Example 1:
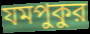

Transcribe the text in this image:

যমপুকুর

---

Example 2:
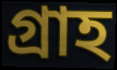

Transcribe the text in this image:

গ্রাহ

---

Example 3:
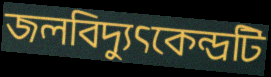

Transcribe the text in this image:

জলবিদ্যুৎকেন্দ্রটি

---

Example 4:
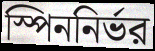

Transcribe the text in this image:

স্পিননির্ভর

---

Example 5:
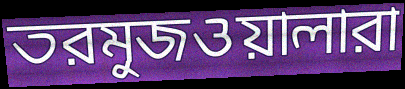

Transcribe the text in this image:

তরমুজওয়ালারা